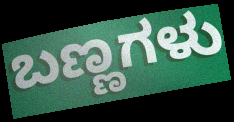
ಬಣ್ಣಗಳು